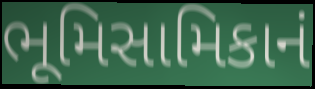
ભૂમિસામિકાનં